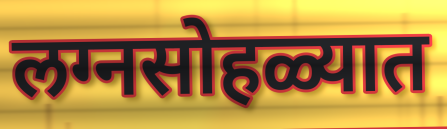
लग्नसोहळ्यात